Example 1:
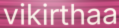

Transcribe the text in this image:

vikirthaa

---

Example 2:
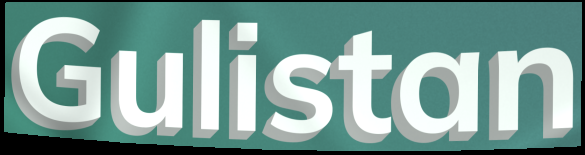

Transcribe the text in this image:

Gulistan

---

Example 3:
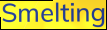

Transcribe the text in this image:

Smelting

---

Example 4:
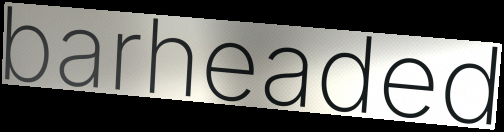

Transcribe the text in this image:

barheaded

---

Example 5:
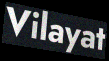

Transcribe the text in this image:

Vilayat